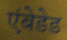
एंबेडेड